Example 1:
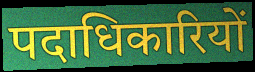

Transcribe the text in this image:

पदाधिकारियों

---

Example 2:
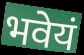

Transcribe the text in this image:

भवेयं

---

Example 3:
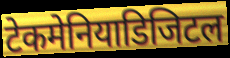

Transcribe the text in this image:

टेकमेनियाडिजिटल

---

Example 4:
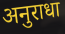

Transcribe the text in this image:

अनुराधा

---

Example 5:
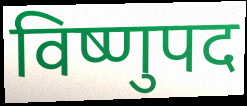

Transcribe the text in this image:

विष्णुपद